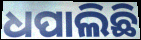
ଧପାଲିଛି